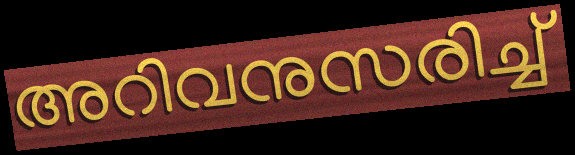
അറിവനുസരിച്ച്